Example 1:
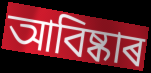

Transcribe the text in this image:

আবিষ্কাৰ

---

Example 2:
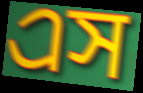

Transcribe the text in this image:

এস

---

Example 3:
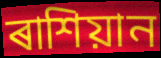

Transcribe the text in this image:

ৰাশিয়ান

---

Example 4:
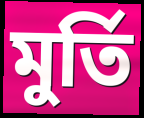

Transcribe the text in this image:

মুৰ্তি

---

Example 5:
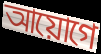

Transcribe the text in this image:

আয়োগে